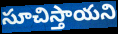
సూచిస్తాయని